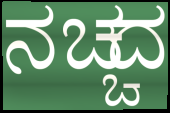
ನಚ್ಚದ